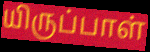
யிருப்பாள்